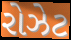
રોઝેટ